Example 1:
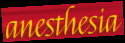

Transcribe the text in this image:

anesthesia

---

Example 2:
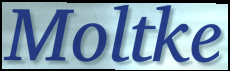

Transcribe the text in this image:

Moltke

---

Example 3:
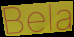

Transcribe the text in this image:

Bela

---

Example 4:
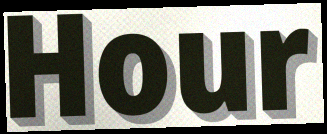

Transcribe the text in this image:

Hour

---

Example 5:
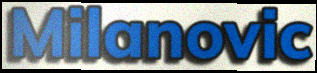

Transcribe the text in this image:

Milanovic